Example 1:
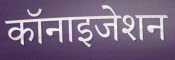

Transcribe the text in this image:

कॉनाइजेशन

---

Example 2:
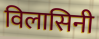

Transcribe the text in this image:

विलासिनी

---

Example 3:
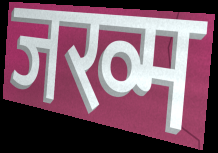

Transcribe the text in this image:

जख्म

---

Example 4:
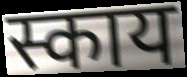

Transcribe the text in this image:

स्काय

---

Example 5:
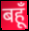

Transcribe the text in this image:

बहूँ